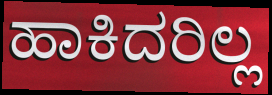
ಹಾಕಿದರಿಲ್ಲ